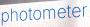
photometer